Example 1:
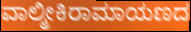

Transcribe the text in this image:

ವಾಲ್ಮೀಕಿರಾಮಾಯಣದ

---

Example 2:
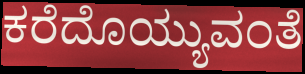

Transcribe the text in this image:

ಕರೆದೊಯ್ಯುವಂತೆ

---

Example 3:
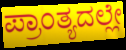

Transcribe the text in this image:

ಪ್ರಾಂತ್ಯದಲ್ಲೇ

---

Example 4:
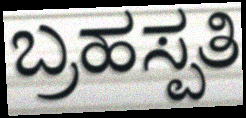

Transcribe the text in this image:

ಬ್ರಹಸ್ಪತಿ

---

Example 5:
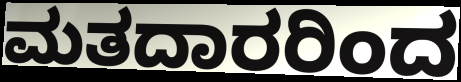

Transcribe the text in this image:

ಮತದಾರರಿಂದ